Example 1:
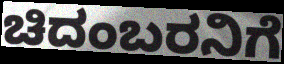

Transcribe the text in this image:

ಚಿದಂಬರನಿಗೆ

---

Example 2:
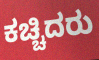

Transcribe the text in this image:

ಕಚ್ಚಿದರು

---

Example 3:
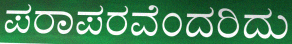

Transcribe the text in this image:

ಪರಾಪರವೆಂದರಿದು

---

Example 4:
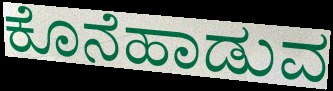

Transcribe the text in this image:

ಕೊನೆಹಾಡುವ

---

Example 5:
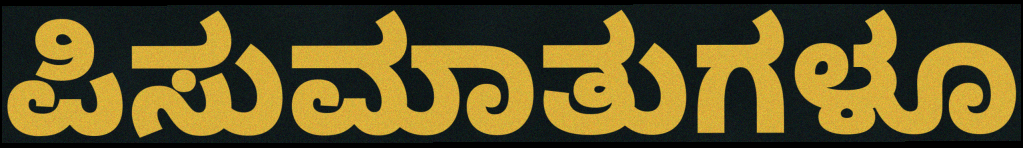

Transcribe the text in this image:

ಪಿಸುಮಾತುಗಳೂ